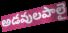
అడవులపాలై